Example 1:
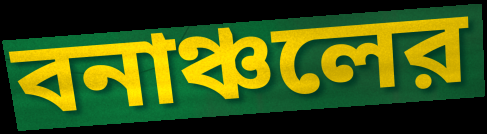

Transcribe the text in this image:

বনাঞ্চলের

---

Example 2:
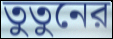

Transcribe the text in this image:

তুতুনের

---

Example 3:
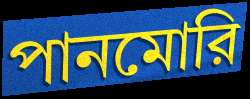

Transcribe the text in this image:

পানমোরি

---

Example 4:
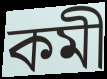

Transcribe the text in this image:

কমী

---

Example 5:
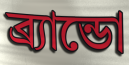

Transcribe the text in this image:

ব্র্যান্ডো